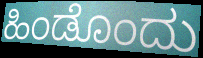
ಹಿಂಡೊಂದು